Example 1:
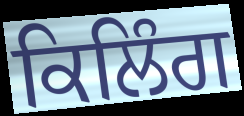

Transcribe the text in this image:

ਕਿਲਿੰਗ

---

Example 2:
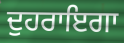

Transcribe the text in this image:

ਦੁਹਰਾਇਗਾ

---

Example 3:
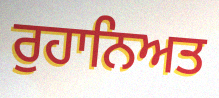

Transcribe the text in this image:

ਰੁਹਾਨਿਅਤ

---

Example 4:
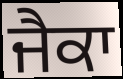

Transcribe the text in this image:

ਜੈਕਾ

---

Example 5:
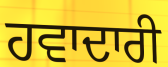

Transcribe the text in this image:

ਹਵਾਦਾਰੀ